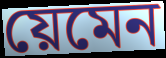
য়েমেন